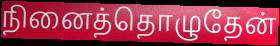
நினைத்தொழுதேன்